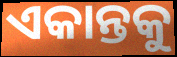
ଏକାନ୍ତକୁ